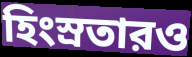
হিংস্রতারও